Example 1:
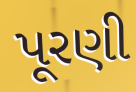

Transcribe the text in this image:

પૂરણી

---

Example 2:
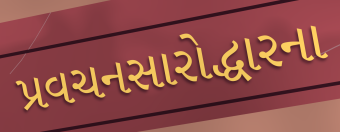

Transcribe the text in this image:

પ્રવચનસારોદ્ધારના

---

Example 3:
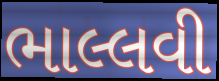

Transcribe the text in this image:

ભાલ્લવી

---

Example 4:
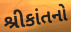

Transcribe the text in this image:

શ્રીકાંતનો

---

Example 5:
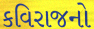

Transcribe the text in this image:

કવિરાજનો